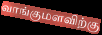
வாங்குமளவிற்கு